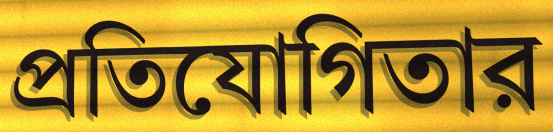
প্রতিযোগিতার